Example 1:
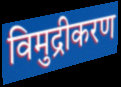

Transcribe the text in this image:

विमुद्रीकरण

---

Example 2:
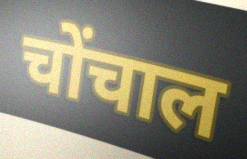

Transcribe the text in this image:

चोंचाल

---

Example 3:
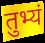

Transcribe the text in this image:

तुभ्यं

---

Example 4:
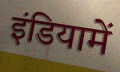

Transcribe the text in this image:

इंडियामें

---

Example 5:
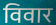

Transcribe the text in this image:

विवार